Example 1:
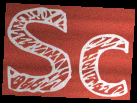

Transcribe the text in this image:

Sc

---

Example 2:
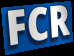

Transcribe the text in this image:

FCR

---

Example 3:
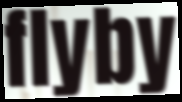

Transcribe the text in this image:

flyby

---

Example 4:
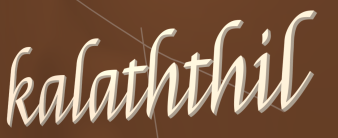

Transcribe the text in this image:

kalaththil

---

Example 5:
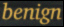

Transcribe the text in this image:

benign